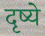
दृष्ये